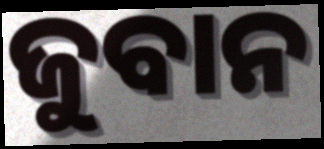
ଜୁବାନ